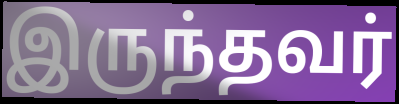
இருந்தவர்